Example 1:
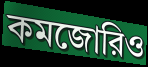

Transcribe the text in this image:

কমজোরিও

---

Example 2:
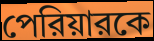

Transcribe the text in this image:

পেরিয়ারকে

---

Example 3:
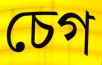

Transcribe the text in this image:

চেগ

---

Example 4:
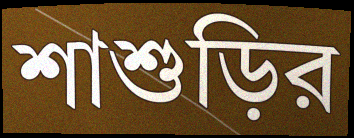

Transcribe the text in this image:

শাশুড়ির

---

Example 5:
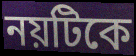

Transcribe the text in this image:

নয়টিকে